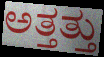
ಅತ್ತತ್ತು